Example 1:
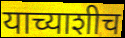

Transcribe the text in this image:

याच्याशीच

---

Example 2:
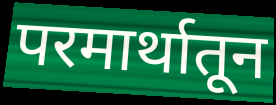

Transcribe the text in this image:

परमार्थातून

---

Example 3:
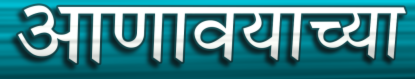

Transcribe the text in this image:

आणावयाच्या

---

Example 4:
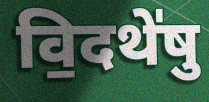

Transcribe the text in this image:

वि॒दथे॑षु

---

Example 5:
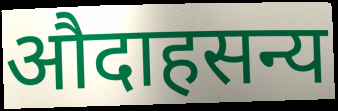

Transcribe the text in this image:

औदाहसन्य